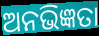
ଅନଭିଜ୍ଞତା